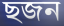
ছজন